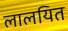
लालयित